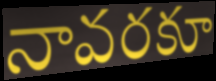
నావరకూ